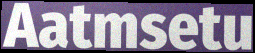
Aatmsetu